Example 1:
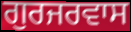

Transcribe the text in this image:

ਗੁਰਜਰਵਾਸ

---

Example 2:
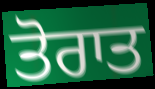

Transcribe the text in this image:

ਤੋਰਾਤ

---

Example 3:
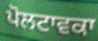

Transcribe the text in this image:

ਪੋਲਟਾਵਕਾ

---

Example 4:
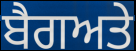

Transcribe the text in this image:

ਬੈਗਅਤੇ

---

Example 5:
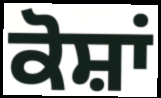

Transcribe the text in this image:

ਕੋਸ਼ਾਂ